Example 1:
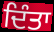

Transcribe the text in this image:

ਦਿੰਤਾ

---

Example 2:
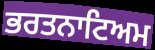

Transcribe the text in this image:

ਭਰਤਨਾਟਿਅਮ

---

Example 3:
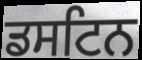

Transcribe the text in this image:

ਡਸਟਿਨ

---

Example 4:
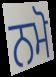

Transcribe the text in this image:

ਨਮੋ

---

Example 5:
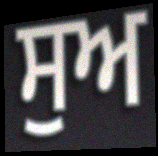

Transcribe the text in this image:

ਸੁਅ